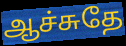
ஆச்சுதே